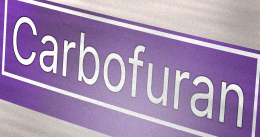
Carbofuran